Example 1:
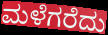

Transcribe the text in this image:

ಮಳೆಗರೆದು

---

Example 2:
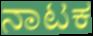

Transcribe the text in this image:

ನಾಟಕ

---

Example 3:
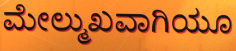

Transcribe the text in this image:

ಮೇಲ್ಮುಖವಾಗಿಯೂ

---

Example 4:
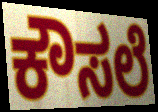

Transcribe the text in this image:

ಕೌಸಲೆ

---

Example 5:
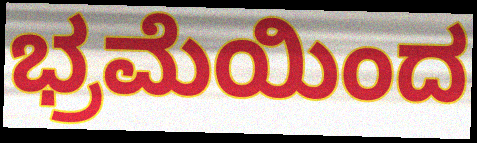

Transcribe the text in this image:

ಭ್ರಮೆಯಿಂದ